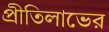
প্রীতিলাভের